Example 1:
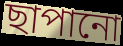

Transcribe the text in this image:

ছাপানো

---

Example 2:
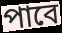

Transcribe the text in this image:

পাবে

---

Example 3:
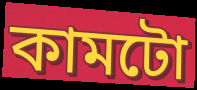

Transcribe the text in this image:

কামটো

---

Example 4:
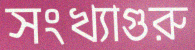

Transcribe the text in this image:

সংখ্যাগুৰু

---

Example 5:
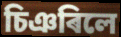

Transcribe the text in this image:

চিঞৰিলে